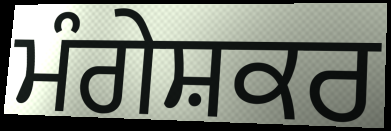
ਮੰਗੇਸ਼ਕਰ